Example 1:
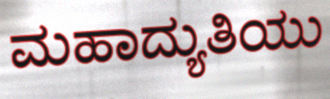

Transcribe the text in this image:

ಮಹಾದ್ಯುತಿಯು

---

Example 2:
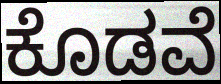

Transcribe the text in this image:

ಕೊಡವೆ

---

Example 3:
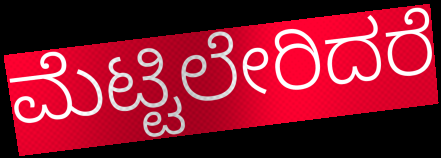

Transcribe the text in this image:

ಮೆಟ್ಟಿಲೇರಿದರೆ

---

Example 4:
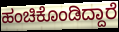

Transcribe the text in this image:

ಹಂಚಿಕೊಂಡಿದ್ದಾರೆ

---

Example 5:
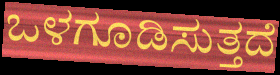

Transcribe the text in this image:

ಒಳಗೂಡಿಸುತ್ತದೆ